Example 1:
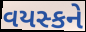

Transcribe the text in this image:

વયસ્કને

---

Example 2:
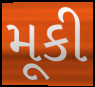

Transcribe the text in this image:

મૂકી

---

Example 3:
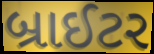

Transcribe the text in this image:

બ્રાઈટર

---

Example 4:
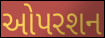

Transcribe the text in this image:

ઓપરશન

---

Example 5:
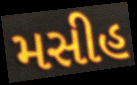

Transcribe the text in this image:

મસીહ